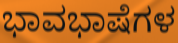
ಭಾವಭಾಷೆಗಳ